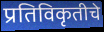
प्रतिविकृतीचे